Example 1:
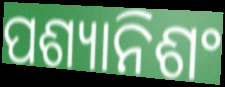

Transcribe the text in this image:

ପଶ୍ୟାନିଶଂ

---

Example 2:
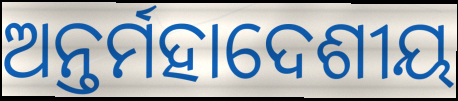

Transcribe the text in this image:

ଅନ୍ତର୍ମହାଦେଶୀୟ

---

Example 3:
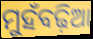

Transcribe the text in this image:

ମୁହଁବଢ଼ିଆ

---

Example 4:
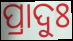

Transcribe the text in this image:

ପ୍ରାଦୁଃ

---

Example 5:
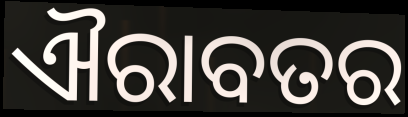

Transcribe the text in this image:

ଐରାବତର